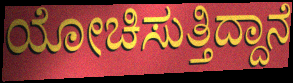
ಯೋಚಿಸುತ್ತಿದ್ದಾನೆ